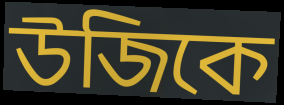
উজিকে